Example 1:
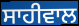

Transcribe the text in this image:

ਸਾਹੀਵਾਲ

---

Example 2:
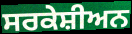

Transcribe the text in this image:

ਸਰਕੇਸ਼ੀਅਨ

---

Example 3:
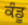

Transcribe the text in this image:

ਕੰਡੂ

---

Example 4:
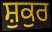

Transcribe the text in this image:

ਸ਼ੁਕੁਰ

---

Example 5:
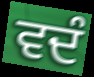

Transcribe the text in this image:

ਵਦੰ